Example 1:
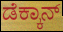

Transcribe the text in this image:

ಡೆಕ್ಕಾನ್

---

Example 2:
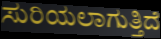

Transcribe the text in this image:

ಸುರಿಯಲಾಗುತ್ತಿದೆ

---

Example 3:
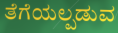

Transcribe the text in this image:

ತೆಗೆಯಲ್ಪಡುವ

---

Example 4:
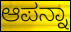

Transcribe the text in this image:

ಆಪನ್ನಾ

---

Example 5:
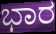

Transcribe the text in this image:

ಭಾರ